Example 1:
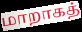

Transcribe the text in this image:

மாறாகத்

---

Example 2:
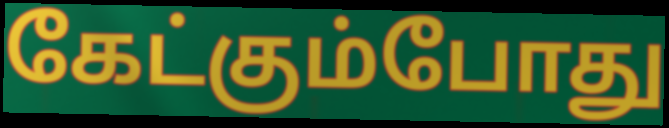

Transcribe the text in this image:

கேட்கும்போது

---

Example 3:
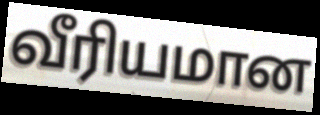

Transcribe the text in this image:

வீரியமான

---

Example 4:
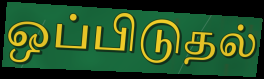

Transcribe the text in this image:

ஒப்பிடுதல்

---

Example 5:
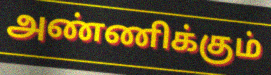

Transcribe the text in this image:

அண்ணிக்கும்